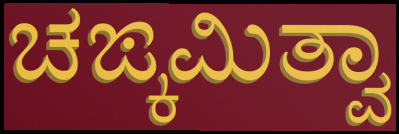
ಚಙ್ಕಮಿತ್ವಾ